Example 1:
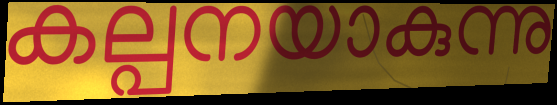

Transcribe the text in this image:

കല്പനയാകുന്നു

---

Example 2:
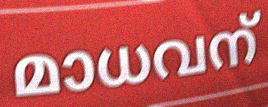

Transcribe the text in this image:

മാധവന്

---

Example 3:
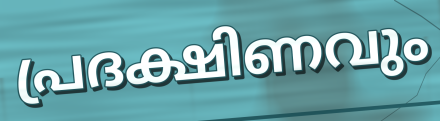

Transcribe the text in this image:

പ്രദക്ഷിണവും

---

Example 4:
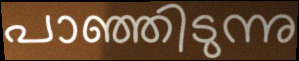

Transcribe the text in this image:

പാഞ്ഞിടുന്നു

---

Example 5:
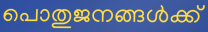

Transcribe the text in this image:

പൊതുജനങ്ങൾക്ക്